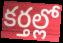
కర్తల్లో